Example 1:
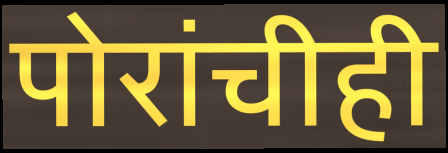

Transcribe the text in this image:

पोरांचीही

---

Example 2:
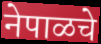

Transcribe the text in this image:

नेपाळचे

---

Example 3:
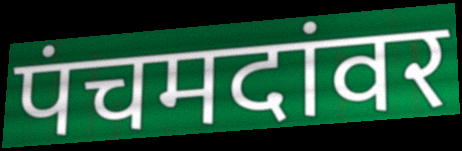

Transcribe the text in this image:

पंचमदांवर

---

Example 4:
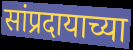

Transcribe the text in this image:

सांप्रदायाच्या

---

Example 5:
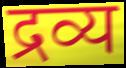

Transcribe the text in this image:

द्रव्य